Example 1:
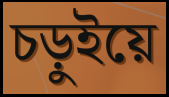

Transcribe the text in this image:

চড়ুইয়ে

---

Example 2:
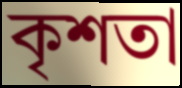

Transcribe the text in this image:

কৃশতা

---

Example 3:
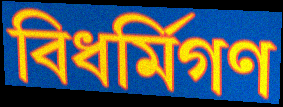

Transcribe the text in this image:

বিধর্মিগণ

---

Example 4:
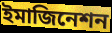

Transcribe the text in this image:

ইমাজিনেশন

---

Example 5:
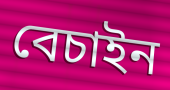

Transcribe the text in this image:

বেচাইন